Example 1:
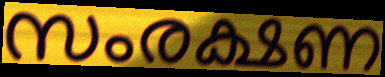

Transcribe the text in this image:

സംരക്ഷണ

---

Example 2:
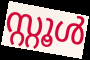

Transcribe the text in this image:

സ്റ്റൂൾ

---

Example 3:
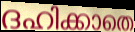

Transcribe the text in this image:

ദഹിക്കാതെ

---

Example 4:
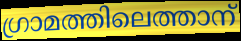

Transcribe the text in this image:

ഗ്രാമത്തിലെത്താന്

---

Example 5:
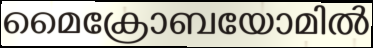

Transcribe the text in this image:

മൈക്രോബയോമിൽ